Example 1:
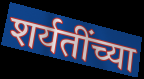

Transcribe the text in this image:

शर्यतींच्या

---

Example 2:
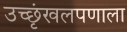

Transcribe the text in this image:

उच्छृंखलपणाला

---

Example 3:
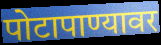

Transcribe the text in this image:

पोटापाण्यावर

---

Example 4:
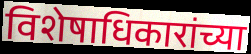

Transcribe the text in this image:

विशेषाधिकारांच्या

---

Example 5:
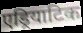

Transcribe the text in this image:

एड्रियाटिक